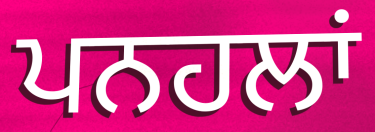
ਪਨਹਲਾਂ